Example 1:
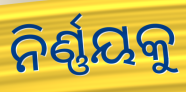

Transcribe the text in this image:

ନିର୍ଣ୍ଣୟକୁ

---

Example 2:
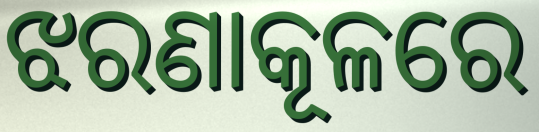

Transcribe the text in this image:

ଝରଣାକୂଳରେ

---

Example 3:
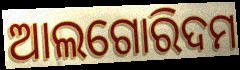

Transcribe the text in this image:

ଆଲଗୋରିଦମ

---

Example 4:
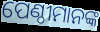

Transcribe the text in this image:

ପେଣ୍ଠୀମାନଙ୍କ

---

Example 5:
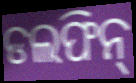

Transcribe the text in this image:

ଡଲଫିନ୍